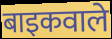
बाइकवाले